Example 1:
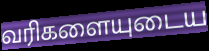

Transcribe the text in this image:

வரிகளையுடைய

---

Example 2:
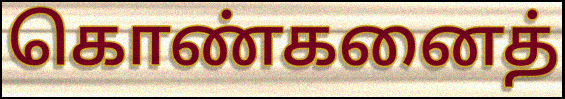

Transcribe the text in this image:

கொண்கனைத்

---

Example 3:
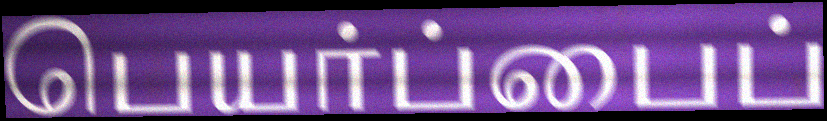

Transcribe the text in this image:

பெயர்ப்பைப்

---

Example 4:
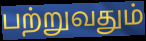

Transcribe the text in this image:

பற்றுவதும்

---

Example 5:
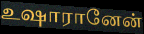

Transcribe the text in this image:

உஷாரானேன்